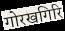
गोरखगिरि